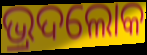
ଭ୍ରଦଲୋକ